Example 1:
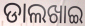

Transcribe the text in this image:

ଡାଲଖାଇ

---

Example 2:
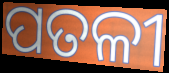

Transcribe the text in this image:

ପତଳୀ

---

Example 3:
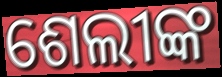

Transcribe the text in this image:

ଶେଲୀଙ୍କ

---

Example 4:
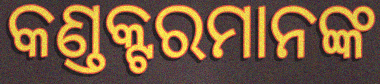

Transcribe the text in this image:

କଣ୍ଡକ୍ଟରମାନଙ୍କ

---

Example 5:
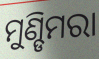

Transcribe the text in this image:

ମୁଣ୍ଡିମରା